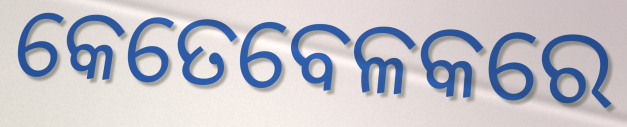
କେତେବେଳକରେ